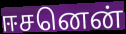
ஈசனென்